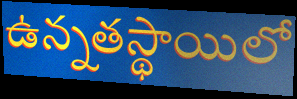
ఉన్నతస్థాయిలో